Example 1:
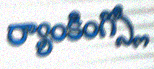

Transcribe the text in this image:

ర్యాంకింగ్స్లో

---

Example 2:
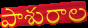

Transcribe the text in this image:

పాశురాల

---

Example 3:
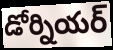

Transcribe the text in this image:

డోర్నియర్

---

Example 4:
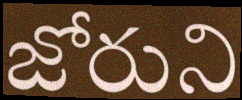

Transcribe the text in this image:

జోరుని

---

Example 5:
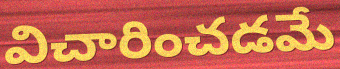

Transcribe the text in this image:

విచారించడమే